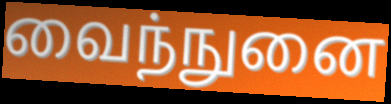
வைந்நுனை